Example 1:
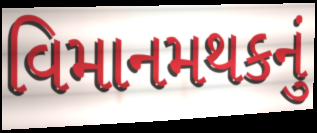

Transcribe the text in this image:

વિમાનમથકનું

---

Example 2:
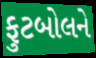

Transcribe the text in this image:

ફુટબોલને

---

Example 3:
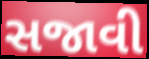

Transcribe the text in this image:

સજાવી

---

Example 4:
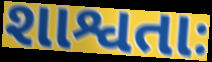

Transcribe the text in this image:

શાશ્વતાઃ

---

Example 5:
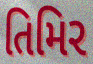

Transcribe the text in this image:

તિમિર